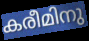
കരീമിനു